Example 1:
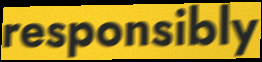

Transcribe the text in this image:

responsibly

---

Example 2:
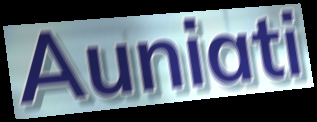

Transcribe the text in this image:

Auniati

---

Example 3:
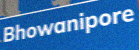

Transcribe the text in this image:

Bhowanipore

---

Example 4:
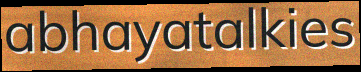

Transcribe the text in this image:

abhayatalkies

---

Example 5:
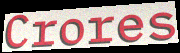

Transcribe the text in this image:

Crores